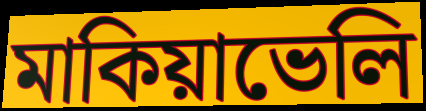
মাকিয়াভেলি